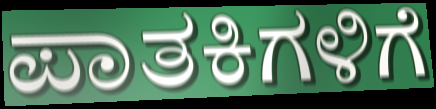
ಪಾತಕಿಗಳಿಗೆ